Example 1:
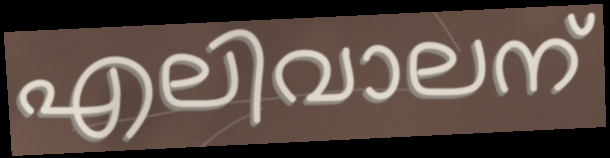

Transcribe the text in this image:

എലിവാലന്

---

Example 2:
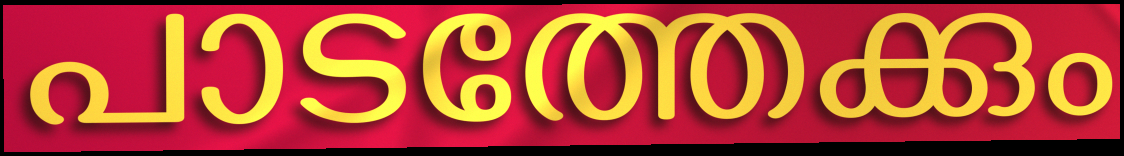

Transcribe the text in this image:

പാടത്തേക്കും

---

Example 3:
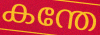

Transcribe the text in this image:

കന്തേ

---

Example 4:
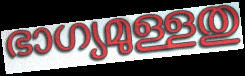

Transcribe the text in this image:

ഭാഗ്യമുള്ളതു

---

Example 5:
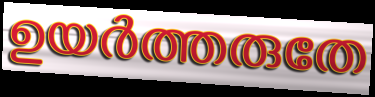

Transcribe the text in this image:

ഉയർത്തരുതേ